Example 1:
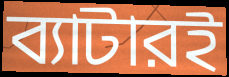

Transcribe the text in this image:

ব্যাটারই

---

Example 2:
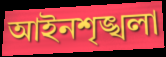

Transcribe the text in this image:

আইনশৃঙ্খলা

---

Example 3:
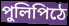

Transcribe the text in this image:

পুলিপিঠে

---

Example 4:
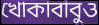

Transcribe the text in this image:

খোকাবাবুও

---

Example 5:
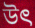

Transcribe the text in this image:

উৎ